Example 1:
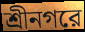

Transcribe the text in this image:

শ্রীনগরে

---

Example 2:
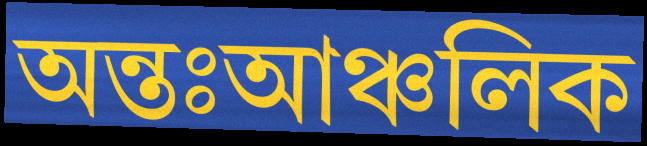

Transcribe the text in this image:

অন্তঃআঞ্চলিক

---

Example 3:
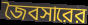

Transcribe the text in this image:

জৈবসারের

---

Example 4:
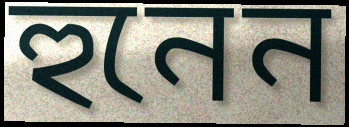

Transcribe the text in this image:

হুনেন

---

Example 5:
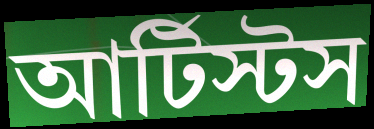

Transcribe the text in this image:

আর্টিস্টস